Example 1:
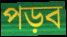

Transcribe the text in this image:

পড়ব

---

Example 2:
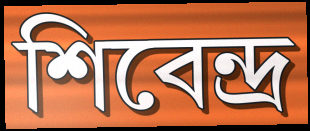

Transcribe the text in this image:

শিবেন্দ্র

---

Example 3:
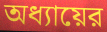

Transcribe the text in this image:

অধ্যায়ের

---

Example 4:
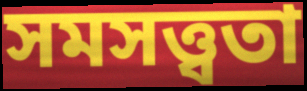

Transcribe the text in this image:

সমসত্ত্বতা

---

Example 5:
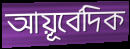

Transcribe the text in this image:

আয়ূর্বেদিক